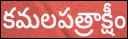
కమలపత్రాక్షీం